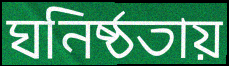
ঘনিষ্ঠতায়